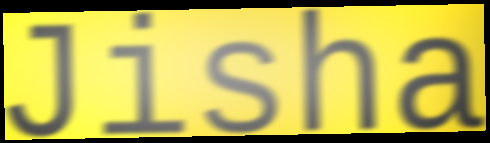
Jisha